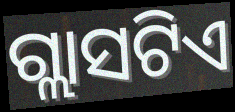
ଗ୍ଲାସଟିଏ